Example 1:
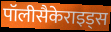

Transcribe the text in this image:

पॉलीसैकेराइड्स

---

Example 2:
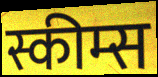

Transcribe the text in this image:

स्‍कीम्‍स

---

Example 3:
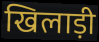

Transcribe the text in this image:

खिलाड़ी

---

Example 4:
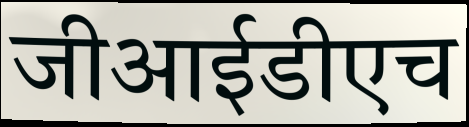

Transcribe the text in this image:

जीआईडीएच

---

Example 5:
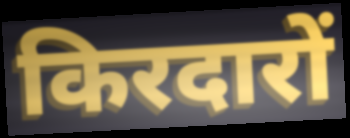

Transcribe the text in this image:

किरदारों